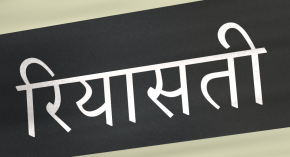
रियासती